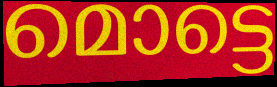
മൊട്ടെ